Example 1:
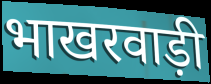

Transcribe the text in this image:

भाखरवाड़ी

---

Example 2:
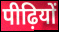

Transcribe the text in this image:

पीढ़ियों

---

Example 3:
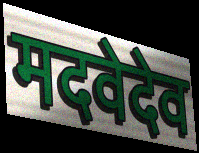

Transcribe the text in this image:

मदवेदेव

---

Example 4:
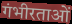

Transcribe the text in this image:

गंभीरताओं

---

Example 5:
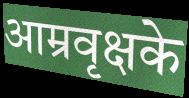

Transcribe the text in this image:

आम्रवृक्षके